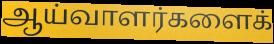
ஆய்வாளர்களைக்